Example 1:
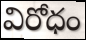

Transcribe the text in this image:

విరోధం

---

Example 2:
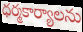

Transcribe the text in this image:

ధర్మకార్యాలను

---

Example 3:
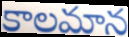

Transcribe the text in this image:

కాలమాన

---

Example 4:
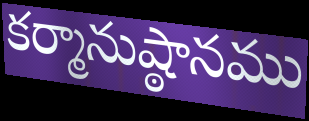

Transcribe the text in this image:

కర్మానుష్ఠానము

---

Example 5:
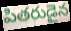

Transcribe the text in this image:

పితరుడైన